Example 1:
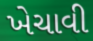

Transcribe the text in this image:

ખેચાવી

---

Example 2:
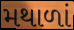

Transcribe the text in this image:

મથાળાં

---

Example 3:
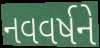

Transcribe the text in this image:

નવવર્ષને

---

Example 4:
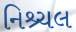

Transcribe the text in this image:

નિશ્ર્ચલ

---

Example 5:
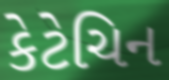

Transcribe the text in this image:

કેટેચિન